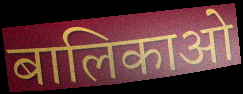
बालिकाओ